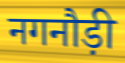
नगनौड़ी